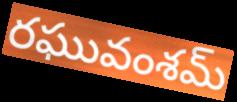
రఘువంశమ్